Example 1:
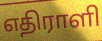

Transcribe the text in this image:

எதிராளி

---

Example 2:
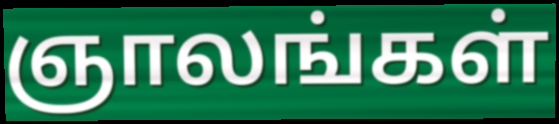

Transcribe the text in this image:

ஞாலங்கள்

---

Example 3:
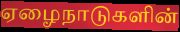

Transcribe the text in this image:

ஏழைநாடுகளின்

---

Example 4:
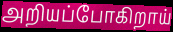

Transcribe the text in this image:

அறியப்போகிறாய்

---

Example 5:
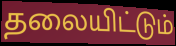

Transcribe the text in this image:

தலையிட்டும்